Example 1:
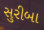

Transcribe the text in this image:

સુરીબા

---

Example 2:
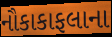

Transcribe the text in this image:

નૌકાકાફલાના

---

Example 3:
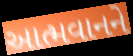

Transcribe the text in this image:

આત્મવાનને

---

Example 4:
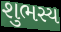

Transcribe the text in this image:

શુભસ્ય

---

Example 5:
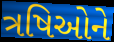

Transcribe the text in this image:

ત્રષિઓને